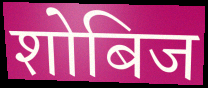
शोबिज